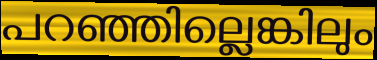
പറഞ്ഞില്ലെങ്കിലും